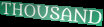
THOUSAND